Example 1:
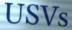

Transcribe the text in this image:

USVs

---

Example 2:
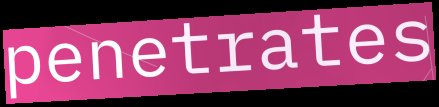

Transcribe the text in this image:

penetrates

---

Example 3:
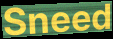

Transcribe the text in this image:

Sneed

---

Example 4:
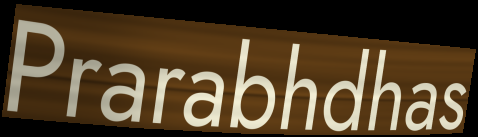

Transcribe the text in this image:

Prarabhdhas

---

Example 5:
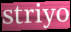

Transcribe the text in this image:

striyo